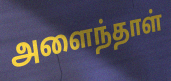
அளைந்தாள்